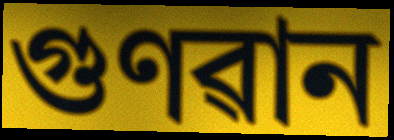
গুণৱান